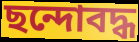
ছন্দোবদ্ধ